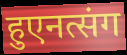
हुएनत्संग